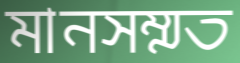
মানসম্মত